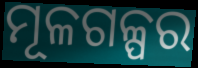
ମୂଳଗଳ୍ପର